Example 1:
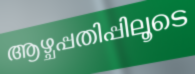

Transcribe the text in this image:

ആഴ്ചപ്പതിപ്പിലൂടെ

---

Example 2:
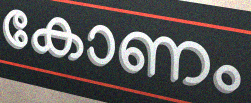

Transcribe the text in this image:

കോണം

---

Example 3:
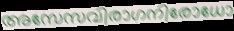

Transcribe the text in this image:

അസേസവിരാഗനിരോധോ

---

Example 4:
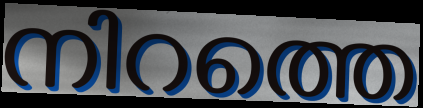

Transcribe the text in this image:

നിറത്തെ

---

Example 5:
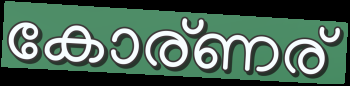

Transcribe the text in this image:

കോര്ണര്